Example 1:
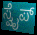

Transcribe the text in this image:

ಸ್ವೈಪ್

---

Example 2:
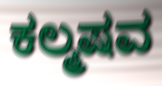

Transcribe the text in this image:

ಕಲ್ಮಷವ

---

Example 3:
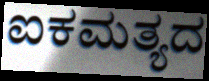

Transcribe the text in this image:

ಐಕಮತ್ಯದ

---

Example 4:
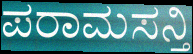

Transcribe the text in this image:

ಪರಾಮಸನ್ತಿ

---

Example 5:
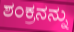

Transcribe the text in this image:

ಶಂಕ್ರನನ್ನು